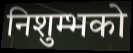
निशुम्भको